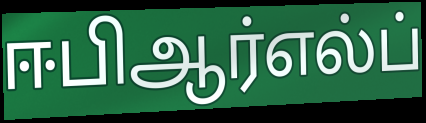
ஈபிஆர்எல்ப்